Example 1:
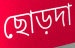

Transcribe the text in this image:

ছোড়দা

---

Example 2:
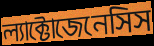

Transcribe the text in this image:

ল্যাক্টোজেনেসিস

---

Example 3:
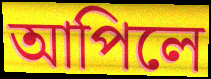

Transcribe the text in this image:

আপিলে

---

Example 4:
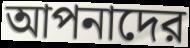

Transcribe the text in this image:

আপনাদের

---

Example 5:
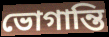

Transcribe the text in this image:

ভোগান্তি